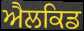
ਐਲਕਿਡ